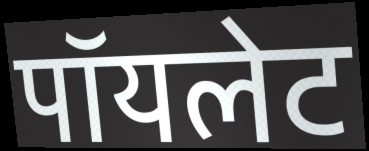
पॉयलेट